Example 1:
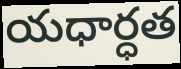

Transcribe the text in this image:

యధార్ధత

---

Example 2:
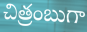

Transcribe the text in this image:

చిత్రంబుగా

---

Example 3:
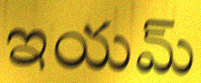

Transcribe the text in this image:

ఇయమ్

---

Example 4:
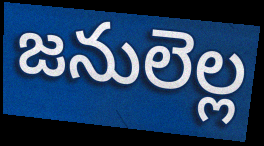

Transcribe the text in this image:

జనులెల్ల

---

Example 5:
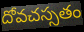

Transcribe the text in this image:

దోవచస్సతం